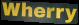
Wherry